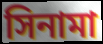
সিনামা